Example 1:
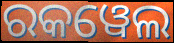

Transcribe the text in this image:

ରକୱେଲ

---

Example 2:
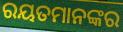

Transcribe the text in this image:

ରୟତମାନଙ୍କର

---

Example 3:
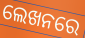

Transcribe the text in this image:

ଲେଖନରେ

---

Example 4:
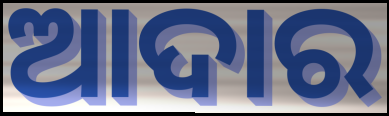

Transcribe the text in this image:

ଆଦାର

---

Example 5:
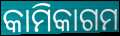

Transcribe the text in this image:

କାମିକାଗମ